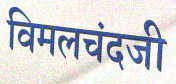
विमलचंदजी